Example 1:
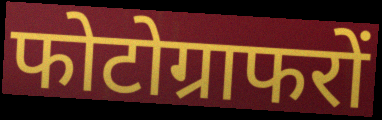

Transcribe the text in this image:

फोटोग्राफरों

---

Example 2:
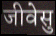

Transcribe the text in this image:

जीवेसु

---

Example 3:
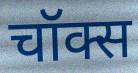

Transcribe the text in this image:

चॉक्स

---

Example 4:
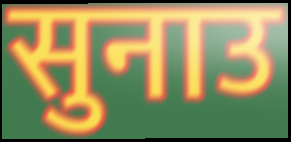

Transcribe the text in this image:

सुनाउ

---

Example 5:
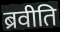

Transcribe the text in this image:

ब्रवीति